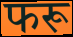
फरू